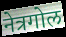
नेत्रगोल